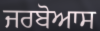
ਜਰਬੋਆਸ